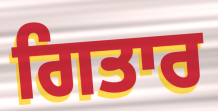
ਗਿਤਾਰ